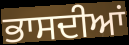
ਭਾਸਦੀਆਂ